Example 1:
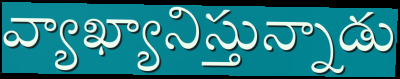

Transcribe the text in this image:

వ్యాఖ్యానిస్తున్నాడు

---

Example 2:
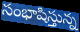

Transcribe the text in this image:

సంభాషిస్తున్న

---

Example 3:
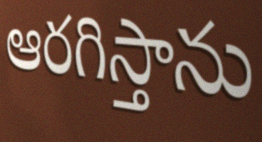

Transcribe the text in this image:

ఆరగిస్తాను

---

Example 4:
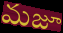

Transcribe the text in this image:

మజూ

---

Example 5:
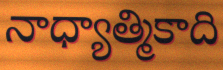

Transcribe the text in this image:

నాధ్యాత్మికాది